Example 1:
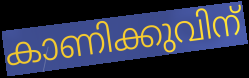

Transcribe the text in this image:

കാണിക്കുവിന്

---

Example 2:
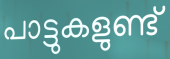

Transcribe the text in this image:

പാട്ടുകളുണ്ട്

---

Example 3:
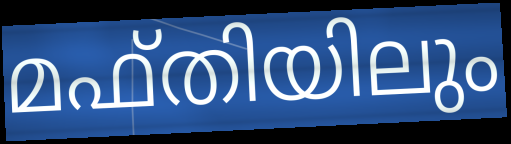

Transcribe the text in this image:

മഫ്തിയിലും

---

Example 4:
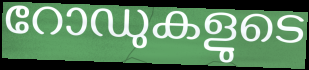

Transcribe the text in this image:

റോഡുകളുടെ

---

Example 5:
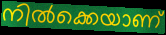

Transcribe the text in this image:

നിൽക്കെയാണ്